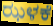
ಝಳಕೆ